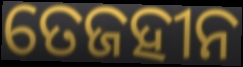
ତେଜହୀନ